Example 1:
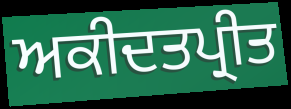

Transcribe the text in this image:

ਅਕੀਦਤਪ੍ਰੀਤ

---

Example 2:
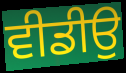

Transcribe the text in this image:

ਵੀਡੀਉ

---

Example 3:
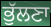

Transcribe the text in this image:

ਭੁੱਲਣਾ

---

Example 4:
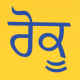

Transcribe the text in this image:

ਰੋਕੂ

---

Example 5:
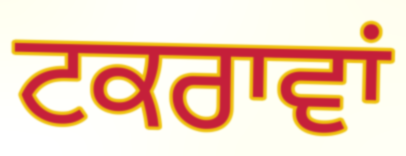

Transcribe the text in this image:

ਟਕਰਾਵਾਂ